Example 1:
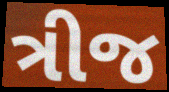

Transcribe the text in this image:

ત્રીજ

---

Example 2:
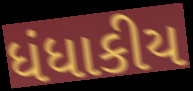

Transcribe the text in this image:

ધંધાકીય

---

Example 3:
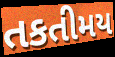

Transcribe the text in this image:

તકતીમય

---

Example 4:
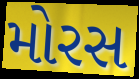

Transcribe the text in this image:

મોરસ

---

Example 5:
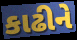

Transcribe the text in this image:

કાઢીને